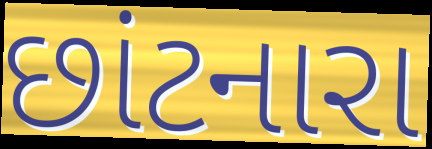
છાંટનારા